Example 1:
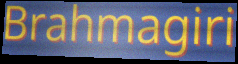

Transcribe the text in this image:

Brahmagiri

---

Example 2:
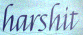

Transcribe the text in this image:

harshit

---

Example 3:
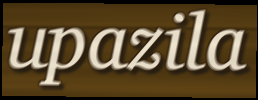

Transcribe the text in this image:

upazila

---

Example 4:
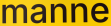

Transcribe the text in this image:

manne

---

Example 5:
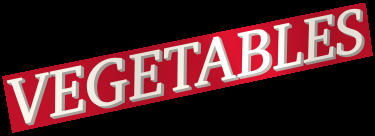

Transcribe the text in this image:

VEGETABLES